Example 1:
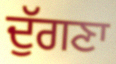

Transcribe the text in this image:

ਦੁੱਗਣਾ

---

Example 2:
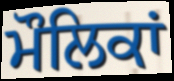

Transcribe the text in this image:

ਮੌਲਿਕਾਂ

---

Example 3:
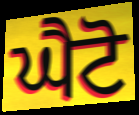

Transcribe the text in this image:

ਘੈਟੋ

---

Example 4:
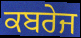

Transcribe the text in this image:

ਕਬਰੇਜ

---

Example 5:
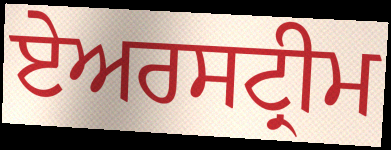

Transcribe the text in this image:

ਏਅਰਸਟ੍ਰੀਮ